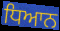
ਧਿਆਨ